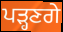
ਪੜ੍ਹਣਗੇ